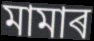
মামাৰ